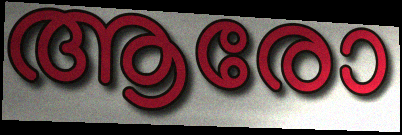
ആരോ